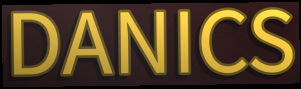
DANICS